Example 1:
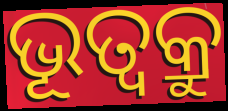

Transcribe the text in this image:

ଭୂତ୍ଵକ୍ରୁ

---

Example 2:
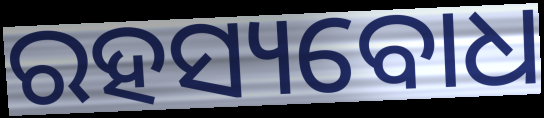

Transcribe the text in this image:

ରହସ୍ୟବୋଧ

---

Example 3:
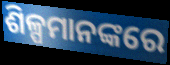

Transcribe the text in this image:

ଶିଳ୍ପମାନଙ୍କରେ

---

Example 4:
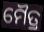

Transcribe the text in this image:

ମୈତ୍ର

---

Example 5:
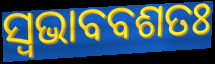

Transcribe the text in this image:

ସ୍ୱଭାବବଶତଃ